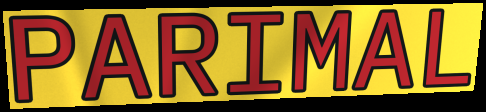
PARIMAL